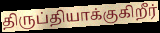
திருப்தியாக்குகிறீர்